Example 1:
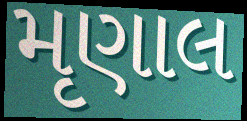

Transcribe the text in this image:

મૃણાલ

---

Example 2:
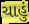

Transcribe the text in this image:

ચાહું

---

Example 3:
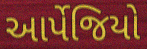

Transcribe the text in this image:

આર્પેજિયો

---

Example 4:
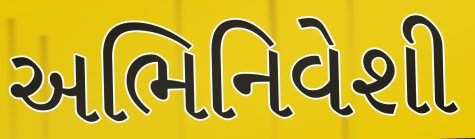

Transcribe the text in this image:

અભિનિવેશી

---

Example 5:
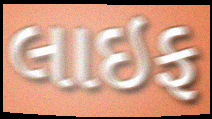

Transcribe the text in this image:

લાઇફ